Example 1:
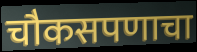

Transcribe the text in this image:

चौकसपणाचा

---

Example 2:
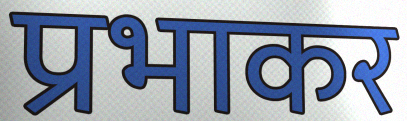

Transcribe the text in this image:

प्रभाकर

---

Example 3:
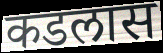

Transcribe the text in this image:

कडलास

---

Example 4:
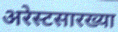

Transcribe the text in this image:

अरेस्टसारख्या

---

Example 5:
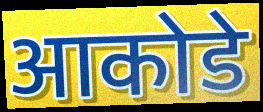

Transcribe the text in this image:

आकोडे